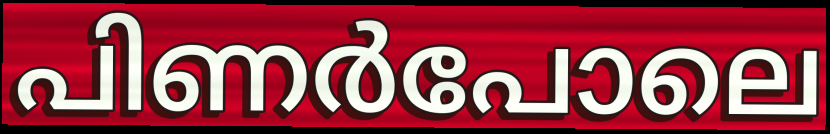
പിണർപോലെ